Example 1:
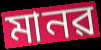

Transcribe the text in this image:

মানৱ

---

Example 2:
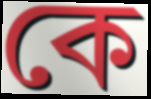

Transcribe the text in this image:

কে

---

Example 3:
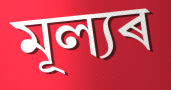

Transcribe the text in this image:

মূল্যৰ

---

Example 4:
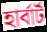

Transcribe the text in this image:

হাৰ্বাৰ্ট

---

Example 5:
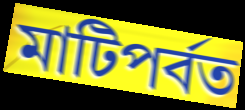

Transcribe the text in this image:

মাটিপৰ্বত